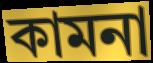
কামনা